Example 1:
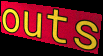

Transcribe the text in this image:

outs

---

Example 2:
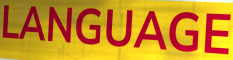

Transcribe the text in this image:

LANGUAGE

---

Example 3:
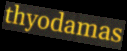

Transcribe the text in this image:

thyodamas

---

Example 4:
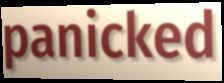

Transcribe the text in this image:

panicked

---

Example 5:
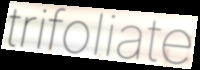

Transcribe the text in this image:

trifoliate